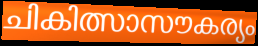
ചികിത്സാസൗകര്യം